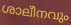
ശാലീനവും